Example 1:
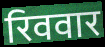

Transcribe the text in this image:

रिववार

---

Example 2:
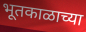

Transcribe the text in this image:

भूतकाळाच्या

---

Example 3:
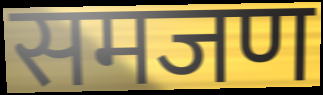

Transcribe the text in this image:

समजण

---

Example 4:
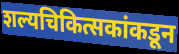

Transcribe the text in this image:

शल्यचिकित्सकांकडून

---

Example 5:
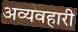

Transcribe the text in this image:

अव्यवहारी